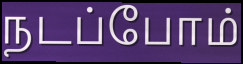
நடப்போம்